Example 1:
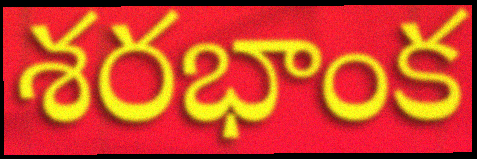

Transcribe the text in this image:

శరభాంక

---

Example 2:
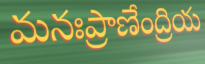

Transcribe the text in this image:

మనఃప్రాణేంద్రియ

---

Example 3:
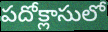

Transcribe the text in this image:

పదోక్లాసులో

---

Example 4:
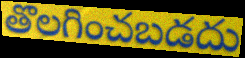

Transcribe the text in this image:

తొలగించబడదు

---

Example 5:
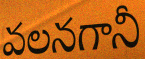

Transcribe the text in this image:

వలనగానీ